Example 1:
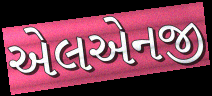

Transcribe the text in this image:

એલએનજી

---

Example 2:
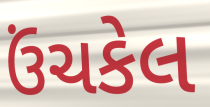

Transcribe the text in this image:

ઉંચકેલ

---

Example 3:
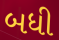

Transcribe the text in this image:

બધી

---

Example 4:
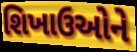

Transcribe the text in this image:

શિખાઉઓને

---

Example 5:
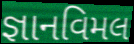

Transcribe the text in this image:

જ્ઞાનવિમલ